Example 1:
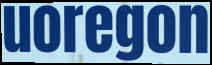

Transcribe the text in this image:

uoregon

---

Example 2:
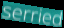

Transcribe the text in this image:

serried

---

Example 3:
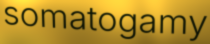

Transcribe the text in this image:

somatogamy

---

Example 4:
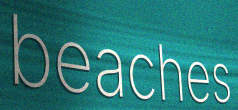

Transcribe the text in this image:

beaches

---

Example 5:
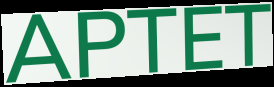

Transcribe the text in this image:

APTET